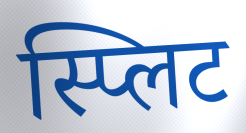
स्प्लिट